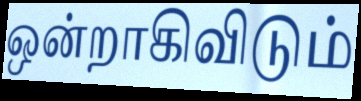
ஒன்றாகிவிடும்